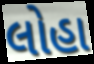
લોહા